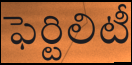
ఫెర్టిలిటీ